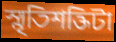
স্মৃতিশক্তিটা